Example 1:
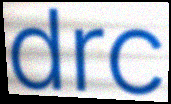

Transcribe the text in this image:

drc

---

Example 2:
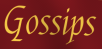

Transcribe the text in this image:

Gossips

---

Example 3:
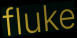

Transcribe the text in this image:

fluke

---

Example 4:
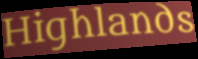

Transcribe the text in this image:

Highlands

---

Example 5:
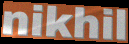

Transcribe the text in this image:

nikhil